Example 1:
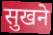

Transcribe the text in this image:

सुखने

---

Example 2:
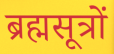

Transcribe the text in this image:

ब्रह्मसूत्रों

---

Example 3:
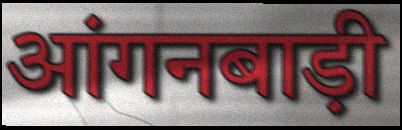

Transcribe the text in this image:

आंगनबाड़ी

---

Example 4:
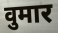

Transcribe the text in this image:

वुमार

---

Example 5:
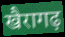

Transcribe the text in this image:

खैरागढ़